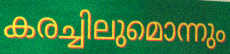
കരച്ചിലുമൊന്നും